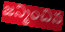
జన్మించిన